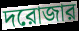
দরোজার